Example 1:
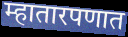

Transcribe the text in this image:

म्हातारपणात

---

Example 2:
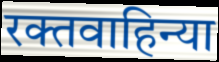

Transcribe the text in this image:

रक्तवाहिन्या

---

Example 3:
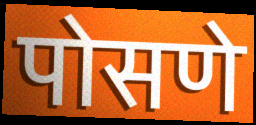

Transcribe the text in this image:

पोसणे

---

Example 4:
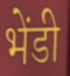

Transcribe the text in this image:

भेंडी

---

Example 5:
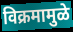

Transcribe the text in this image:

विक्रमामुळे